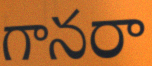
గానరా